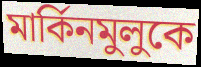
মার্কিনমুলুকে